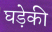
घड़ेकी